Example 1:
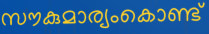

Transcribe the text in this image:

സൗകുമാര്യംകൊണ്ട്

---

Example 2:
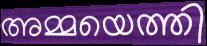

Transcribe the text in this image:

അമ്മയെത്തി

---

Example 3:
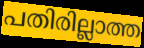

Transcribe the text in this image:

പതിരില്ലാത്ത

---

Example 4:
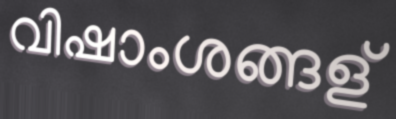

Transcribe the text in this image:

വിഷാംശങ്ങള്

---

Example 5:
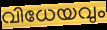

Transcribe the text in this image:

വിധേയവും